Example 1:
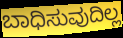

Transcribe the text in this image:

ಬಾಧಿಸುವುದಿಲ್ಲ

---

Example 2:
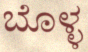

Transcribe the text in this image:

ಬೊಳ್ಳ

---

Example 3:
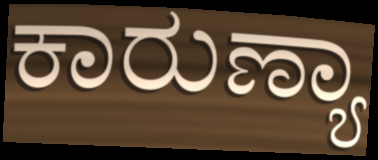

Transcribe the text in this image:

ಕಾರುಣ್ಯಾ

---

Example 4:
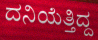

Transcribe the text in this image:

ದನಿಯೆತ್ತಿದ್ದ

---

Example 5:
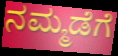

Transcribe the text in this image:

ನಮ್ಮಡೆಗೆ